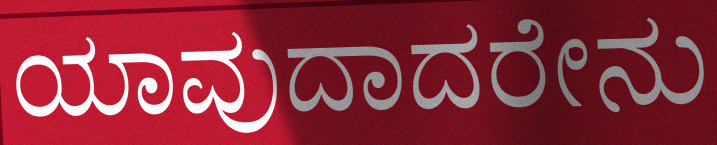
ಯಾವುದಾದರೇನು